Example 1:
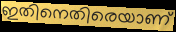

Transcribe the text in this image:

ഇതിനെതിരെയാണ്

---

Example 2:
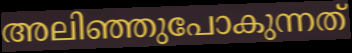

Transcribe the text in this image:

അലിഞ്ഞുപോകുന്നത്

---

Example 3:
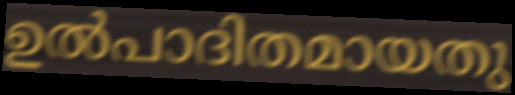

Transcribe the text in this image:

ഉൽപാദിതമായതു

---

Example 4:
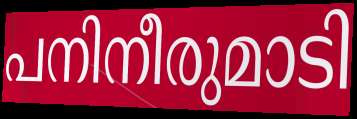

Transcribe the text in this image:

പനിനീരുമാടി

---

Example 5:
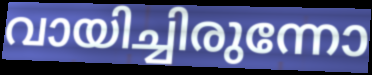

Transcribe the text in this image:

വായിച്ചിരുന്നോ